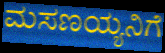
ಮಸಣಯ್ಯನಿಗೆ